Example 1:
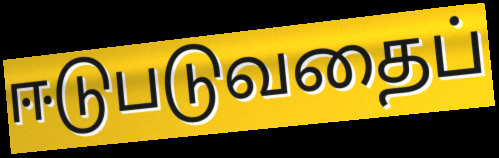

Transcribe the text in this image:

ஈடுபடுவதைப்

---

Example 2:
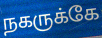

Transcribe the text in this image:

நகருக்கே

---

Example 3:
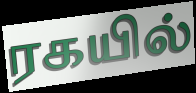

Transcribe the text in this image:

ரகயில்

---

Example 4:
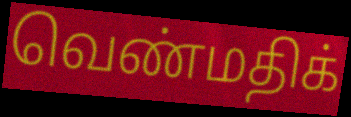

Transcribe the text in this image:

வெண்மதிக்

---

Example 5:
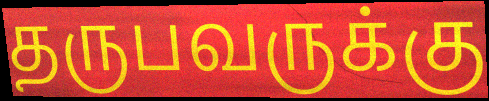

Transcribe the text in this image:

தருபவருக்கு